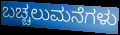
ಬಚ್ಚಲುಮನೆಗಳು